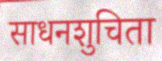
साधनशुचिता